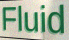
Fluid